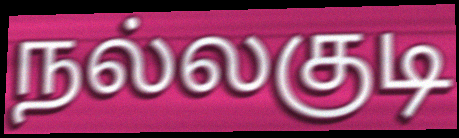
நல்லகுடி